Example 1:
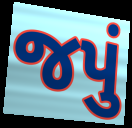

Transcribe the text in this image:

જપું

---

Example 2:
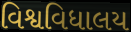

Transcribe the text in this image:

વિશ્વવિધાલય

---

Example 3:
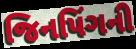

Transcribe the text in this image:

જિનપિંગની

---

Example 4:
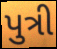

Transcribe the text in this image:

પુત્રી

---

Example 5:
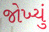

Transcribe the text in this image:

જોખ્યું